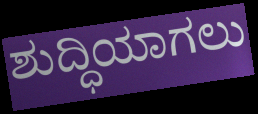
ಶುದ್ಧಿಯಾಗಲು